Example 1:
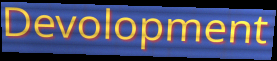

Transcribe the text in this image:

Devolopment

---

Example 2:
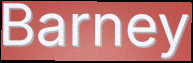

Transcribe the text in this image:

Barney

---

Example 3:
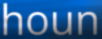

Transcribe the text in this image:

houn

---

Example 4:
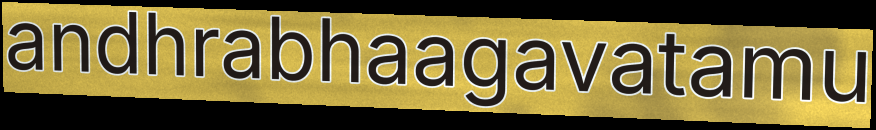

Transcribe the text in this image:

andhrabhaagavatamu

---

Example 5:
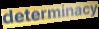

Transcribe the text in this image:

determinacy